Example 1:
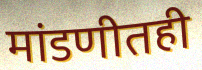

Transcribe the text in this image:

मांडणीतही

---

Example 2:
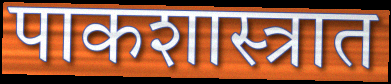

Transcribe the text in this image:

पाकशास्त्रात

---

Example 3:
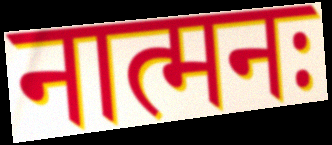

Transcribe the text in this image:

नात्मनः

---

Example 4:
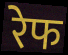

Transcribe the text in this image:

रेफ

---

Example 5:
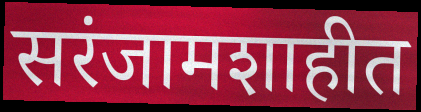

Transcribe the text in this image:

सरंजामशाहीत